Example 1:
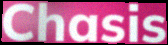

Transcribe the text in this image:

Chasis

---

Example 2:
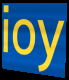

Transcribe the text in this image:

ioy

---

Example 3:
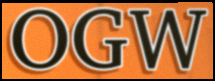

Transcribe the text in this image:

OGW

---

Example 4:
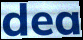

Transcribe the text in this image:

dea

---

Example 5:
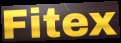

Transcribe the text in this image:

Fitex